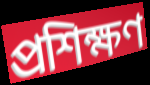
প্রশিক্ষণ